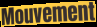
Mouvement